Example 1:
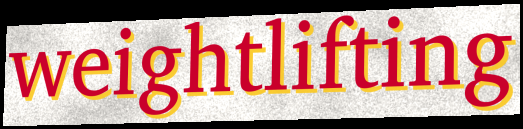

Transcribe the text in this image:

weightlifting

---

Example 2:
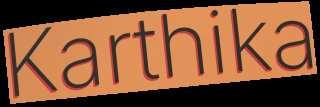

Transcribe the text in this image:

Karthika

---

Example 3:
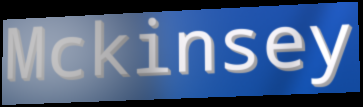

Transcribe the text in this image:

Mckinsey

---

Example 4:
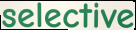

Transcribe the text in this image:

selective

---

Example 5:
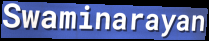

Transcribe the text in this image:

Swaminarayan